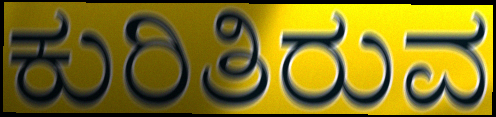
ಕುರಿತಿರುವ